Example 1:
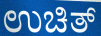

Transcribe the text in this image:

ಉಚಿತ್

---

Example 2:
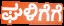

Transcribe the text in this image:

ಘಳಿಗೆಗೆ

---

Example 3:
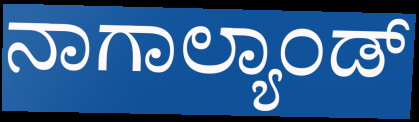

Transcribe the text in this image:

ನಾಗಾಲ್ಯಾಂಡ್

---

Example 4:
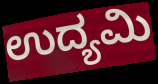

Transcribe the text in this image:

ಉದ್ಯಮಿ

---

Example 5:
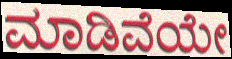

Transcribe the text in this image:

ಮಾಡಿವೆಯೇ